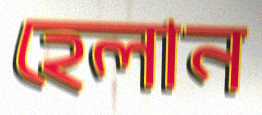
হেলান